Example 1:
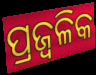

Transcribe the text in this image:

ପ୍ରଜ୍ଵଳିକ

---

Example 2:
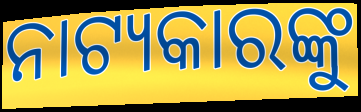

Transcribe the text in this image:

ନାଟ୍ୟକାରଙ୍କୁ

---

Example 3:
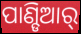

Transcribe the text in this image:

ପାଣ୍ଡିଆର୍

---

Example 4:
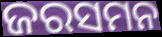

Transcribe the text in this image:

ଜରସମନ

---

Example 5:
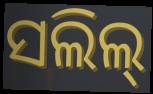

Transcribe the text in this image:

ସଲିଲ୍